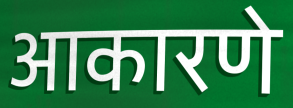
आकारणे